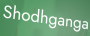
Shodhganga